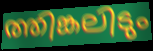
ത്തിങ്കലിടും